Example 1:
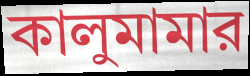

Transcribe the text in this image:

কালুমামার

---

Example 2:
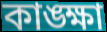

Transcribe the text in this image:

কাঙ্ক্ষা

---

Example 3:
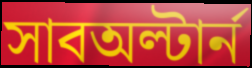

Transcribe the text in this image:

সাবঅল্টার্ন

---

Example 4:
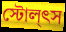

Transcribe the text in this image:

স্টোল্ৎস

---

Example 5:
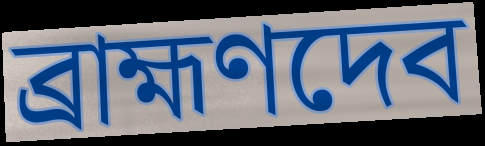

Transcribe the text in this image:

ব্রাহ্মণদেব